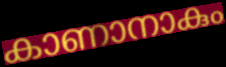
കാണാനാകും